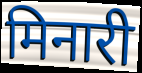
मिनारी